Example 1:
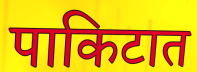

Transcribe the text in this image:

पाकिटात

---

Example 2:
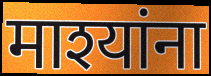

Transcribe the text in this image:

माश्यांना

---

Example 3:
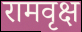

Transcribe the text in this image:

रामवृक्ष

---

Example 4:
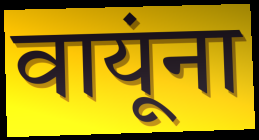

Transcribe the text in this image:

वायूंना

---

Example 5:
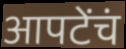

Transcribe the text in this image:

आपटेंचं